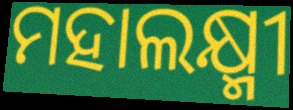
ମହାଲକ୍ଷ୍ମୀ